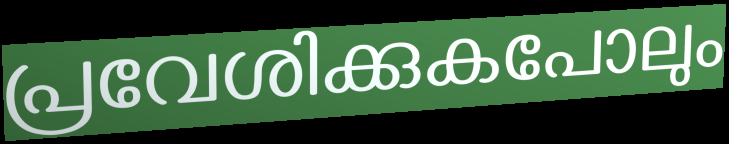
പ്രവേശിക്കുകപോലും